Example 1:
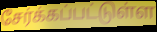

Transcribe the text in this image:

சேர்க்கப்பட்டுள்ள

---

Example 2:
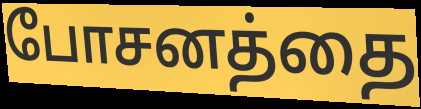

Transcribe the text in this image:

போசனத்தை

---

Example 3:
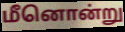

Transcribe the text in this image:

மீனொன்று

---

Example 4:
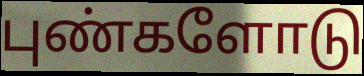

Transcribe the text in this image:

புண்களோடு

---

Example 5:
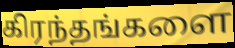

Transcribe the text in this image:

கிரந்தங்களை